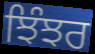
ਝਿੰਝਰ